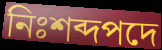
নিঃশব্দপদে